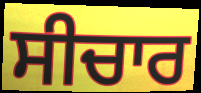
ਸੀਚਾਰ